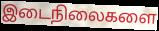
இடைநிலைகளை